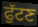
ਫੁੱਟਣ